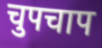
चुपचाप